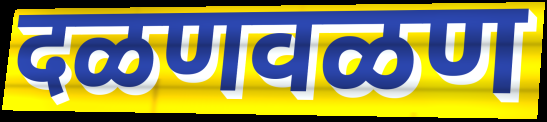
दळणवळण